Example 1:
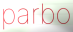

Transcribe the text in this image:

parbo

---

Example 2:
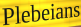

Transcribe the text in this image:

Plebeians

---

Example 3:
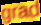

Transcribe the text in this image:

grad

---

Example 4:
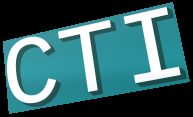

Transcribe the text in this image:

CTI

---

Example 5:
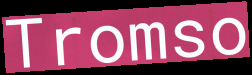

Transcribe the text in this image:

Tromso